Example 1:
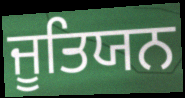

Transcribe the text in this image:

ਜੂਤਿਯਨ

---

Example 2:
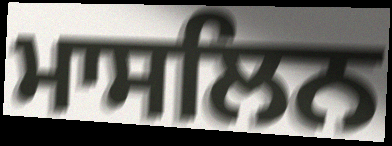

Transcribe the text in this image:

ਮਾਸਲਿਨ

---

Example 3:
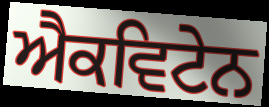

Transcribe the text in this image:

ਐਕਵਿਟੇਨ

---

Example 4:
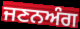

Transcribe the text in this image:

ਜਣਨਅੰਗ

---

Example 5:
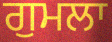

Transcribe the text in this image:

ਗੁਮਲਾ